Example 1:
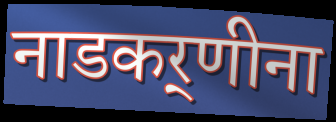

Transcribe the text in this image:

नाडकर्णीना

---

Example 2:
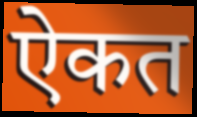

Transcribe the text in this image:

ऐकत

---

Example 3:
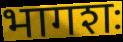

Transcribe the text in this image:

भागशः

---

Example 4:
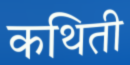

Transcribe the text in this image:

कथिती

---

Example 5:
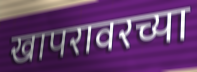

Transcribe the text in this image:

खापरावरच्या